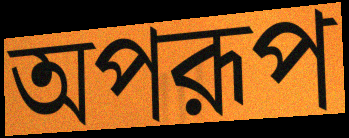
অপরূপ